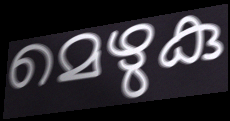
മെഴുകു